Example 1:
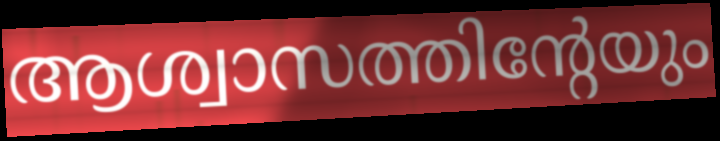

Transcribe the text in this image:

ആശ്വാസത്തിന്റേയും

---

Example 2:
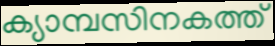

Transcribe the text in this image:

ക്യാമ്പസിനകത്ത്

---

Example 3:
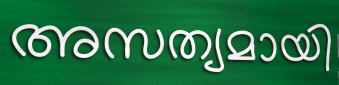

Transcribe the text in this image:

അസത്യമായി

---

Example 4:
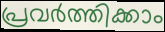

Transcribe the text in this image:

പ്രവർത്തിക്കാം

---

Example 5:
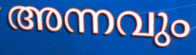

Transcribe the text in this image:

അന്നവും